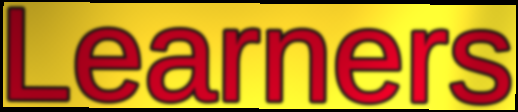
Learners